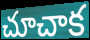
చూచాక